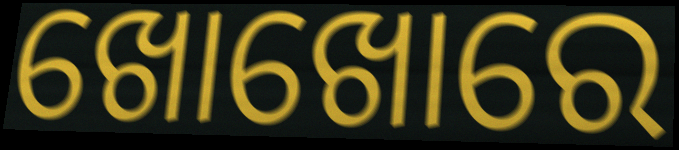
ଖୋଖୋରେ